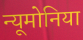
न्यूमोनिया